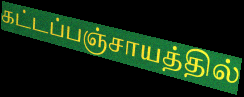
கட்டப்பஞ்சாயத்தில்